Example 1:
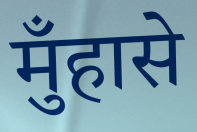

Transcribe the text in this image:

मुँहासे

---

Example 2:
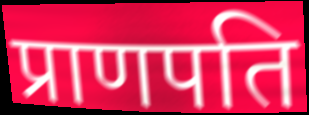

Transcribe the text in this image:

प्राणपति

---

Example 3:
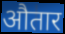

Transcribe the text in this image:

औतार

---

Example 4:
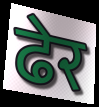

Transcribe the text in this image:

ढेर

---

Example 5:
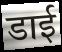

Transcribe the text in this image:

डाई